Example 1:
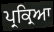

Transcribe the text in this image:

ਪ੍ਰਕ੍ਰਿਆ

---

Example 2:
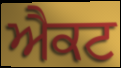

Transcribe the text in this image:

ਐਕਟ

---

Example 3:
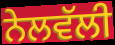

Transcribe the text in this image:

ਨੇਲਵੱਲੀ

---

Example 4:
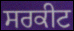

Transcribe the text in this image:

ਸਰਕੀਟ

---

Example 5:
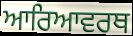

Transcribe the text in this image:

ਆਰਿਆਵਰਥ